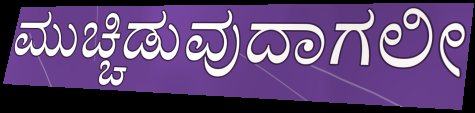
ಮುಚ್ಚಿಡುವುದಾಗಲೀ